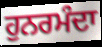
ਹੁਨਰਮੰਦਾ